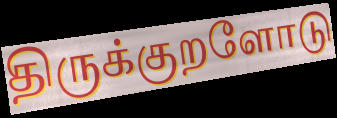
திருக்குறளோடு